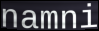
namni